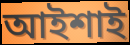
আইশাই